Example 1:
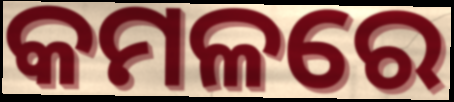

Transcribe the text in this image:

କମଳରେ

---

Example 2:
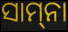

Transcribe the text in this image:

ସାମ୍‌ନା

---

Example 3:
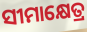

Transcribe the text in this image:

ସୀମାକ୍ଷେତ୍ର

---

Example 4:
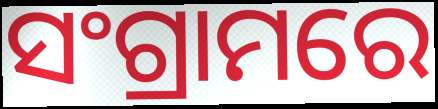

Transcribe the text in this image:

ସଂଗ୍ରାମରେ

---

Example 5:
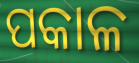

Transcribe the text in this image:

ପକାଳ